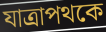
যাত্রাপথকে